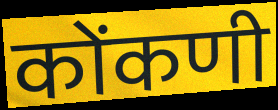
कोंकणी